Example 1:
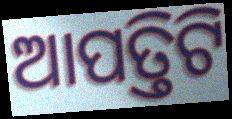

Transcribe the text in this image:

ଆପତ୍ତିଟି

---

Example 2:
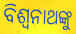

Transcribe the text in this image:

ବିଶ୍ବନାଥଙ୍କୁ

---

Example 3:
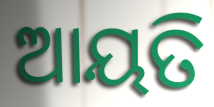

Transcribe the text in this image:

ଆୟତି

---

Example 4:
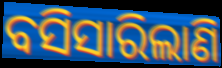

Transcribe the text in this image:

ବସିସାରିଲାଣି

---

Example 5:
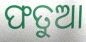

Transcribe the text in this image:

ଫତୁଆ